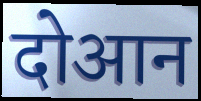
दोआन